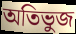
অতিভুজ